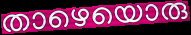
താഴെയൊരു